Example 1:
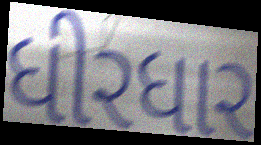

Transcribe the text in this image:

ધીરધાર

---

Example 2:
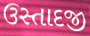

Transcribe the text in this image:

ઉસ્તાદજી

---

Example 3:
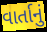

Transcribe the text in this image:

વાર્તાનું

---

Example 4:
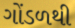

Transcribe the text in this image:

ગોંડળથી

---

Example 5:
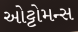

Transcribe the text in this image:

ઓટ્ટોમન્સ